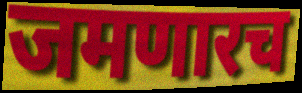
जमणारच